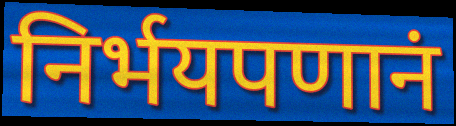
निर्भयपणानं